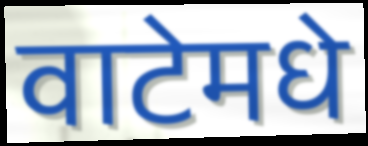
वाटेमधे